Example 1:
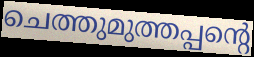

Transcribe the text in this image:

ചെത്തുമുത്തപ്പന്റെ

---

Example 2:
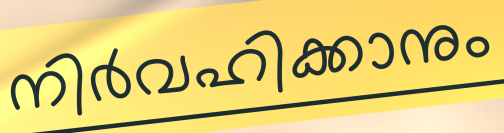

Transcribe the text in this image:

നിർവഹിക്കാനും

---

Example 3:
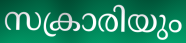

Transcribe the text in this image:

സക്രാരിയും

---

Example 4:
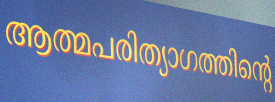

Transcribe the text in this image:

ആത്മപരിത്യാഗത്തിന്റെ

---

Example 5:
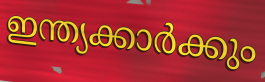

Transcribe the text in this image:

ഇന്ത്യക്കാർക്കും